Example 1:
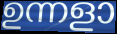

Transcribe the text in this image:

ഉന്നളാ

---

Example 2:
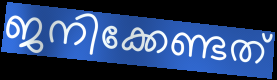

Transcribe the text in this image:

ജനിക്കേണ്ടത്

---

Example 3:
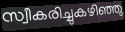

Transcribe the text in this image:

സ്വീകരിച്ചുകഴിഞ്ഞു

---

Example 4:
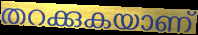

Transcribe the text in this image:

തറക്കുകയാണ്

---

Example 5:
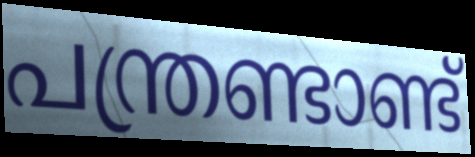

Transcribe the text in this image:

പന്ത്രണ്ടാണ്ട്